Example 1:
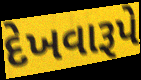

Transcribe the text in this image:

દેખવારૂપે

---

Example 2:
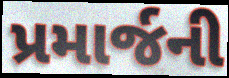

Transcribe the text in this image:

પ્રમાર્જની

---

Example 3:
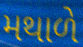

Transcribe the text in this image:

મથાળે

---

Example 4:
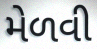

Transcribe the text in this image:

મેળવી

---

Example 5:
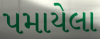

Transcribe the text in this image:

પમાયેલા